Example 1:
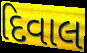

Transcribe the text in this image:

દિવાલ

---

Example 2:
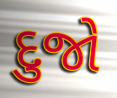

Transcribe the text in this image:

દુજો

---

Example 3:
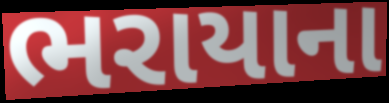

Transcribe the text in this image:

ભરાયાના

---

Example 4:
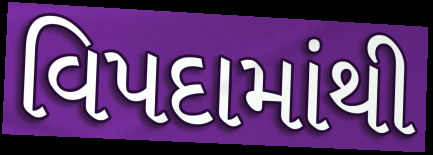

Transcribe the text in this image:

વિપદામાંથી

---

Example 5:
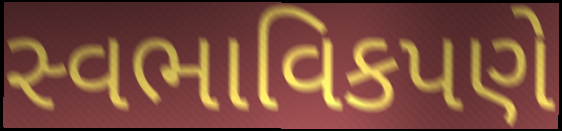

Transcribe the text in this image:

સ્વભાવિકપણે